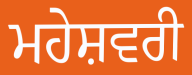
ਮਹੇਸ਼ਵਰੀ